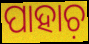
ପାହାଚ଼